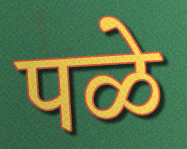
पळे